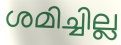
ശമിച്ചില്ല